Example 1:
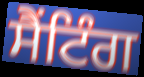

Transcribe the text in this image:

ਸੈਂਟਿੰਗ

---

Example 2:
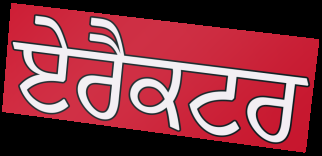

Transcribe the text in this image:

ਏਰੈਕਟਰ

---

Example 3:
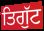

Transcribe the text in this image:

ਤਿਗੁੱਟ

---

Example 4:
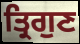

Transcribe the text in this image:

ਤ੍ਰਿਗੁਣ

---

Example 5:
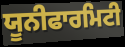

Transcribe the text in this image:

ਯੂਨੀਫਾਰਮਿਟੀ